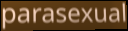
parasexual